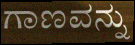
ಗಾಣವನ್ನು